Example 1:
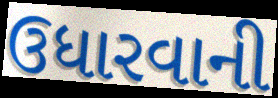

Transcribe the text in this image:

ઉધારવાની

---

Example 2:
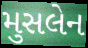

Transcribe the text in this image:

મુસલેન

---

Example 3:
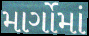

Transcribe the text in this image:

માર્ગોમાં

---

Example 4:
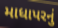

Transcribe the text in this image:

માધાપરનું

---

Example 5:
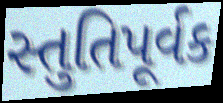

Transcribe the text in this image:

સ્તુતિપૂર્વક